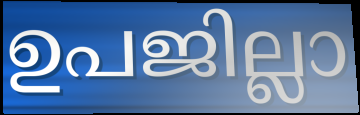
ഉപജില്ലാ